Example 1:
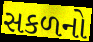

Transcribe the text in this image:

સકળનો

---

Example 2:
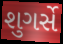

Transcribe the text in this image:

શુગર્સે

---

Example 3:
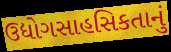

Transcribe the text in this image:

ઉદ્યોગસાહસિકતાનું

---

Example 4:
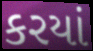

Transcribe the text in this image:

કરયાં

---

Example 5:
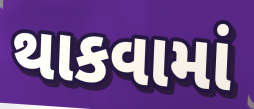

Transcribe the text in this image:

થાકવામાં